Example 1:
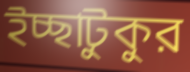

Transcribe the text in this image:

ইচ্ছাটুকুর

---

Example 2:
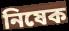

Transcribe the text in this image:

নিষেক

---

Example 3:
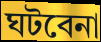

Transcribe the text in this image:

ঘটবেনা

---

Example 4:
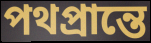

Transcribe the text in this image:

পথপ্রান্তে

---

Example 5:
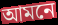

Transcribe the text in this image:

আমনে